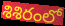
శిశిరంలో